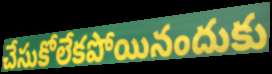
చేసుకోలేకపోయినందుకు